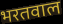
भरतवाल